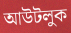
আউটলুক